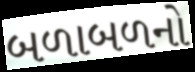
બળાબળનો